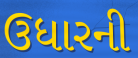
ઉધારની